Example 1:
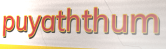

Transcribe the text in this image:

puyaththum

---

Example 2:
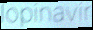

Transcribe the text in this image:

lopinavir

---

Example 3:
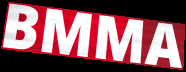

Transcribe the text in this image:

BMMA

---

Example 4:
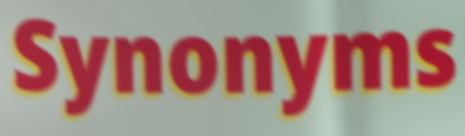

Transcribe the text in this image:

Synonyms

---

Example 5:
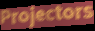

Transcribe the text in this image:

Projectors